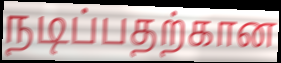
நடிப்பதற்கான